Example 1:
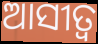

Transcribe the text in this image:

ଆସୀତ୍ବ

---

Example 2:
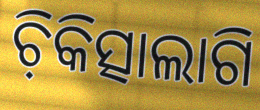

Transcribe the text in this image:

ଚ଼ିକିତ୍ସାଲାଗି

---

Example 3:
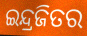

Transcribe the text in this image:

ଇନ୍ଦ୍ରଜିତର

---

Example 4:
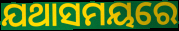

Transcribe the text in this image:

ଯଥାସମୟରେ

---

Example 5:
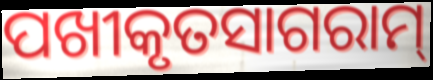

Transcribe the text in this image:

ପଖୀକୃତସାଗରାମ୍